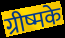
ग्रीष्मके